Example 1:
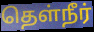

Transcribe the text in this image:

தெள்நீர்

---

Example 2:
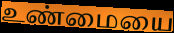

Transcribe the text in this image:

உண்மையை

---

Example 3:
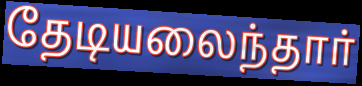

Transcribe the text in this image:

தேடியலைந்தார்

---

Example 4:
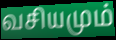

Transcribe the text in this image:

வசியமும்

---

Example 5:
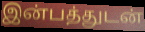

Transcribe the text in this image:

இன்பத்துடன்